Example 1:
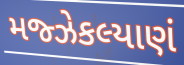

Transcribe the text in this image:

મજ્ઝેકલ્યાણં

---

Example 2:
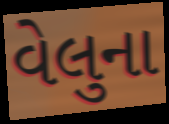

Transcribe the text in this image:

વેલુના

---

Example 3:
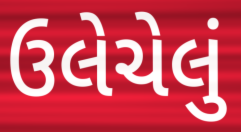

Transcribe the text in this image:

ઉલેચેલું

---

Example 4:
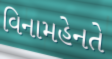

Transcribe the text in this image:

વિનામહેનતે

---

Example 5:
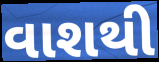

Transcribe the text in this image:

વાશથી